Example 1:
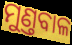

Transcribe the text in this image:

ମୁଣ୍ତବାଳ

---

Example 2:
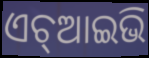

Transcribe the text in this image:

ଏଚ୍ଆଇଭି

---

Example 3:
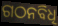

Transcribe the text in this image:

ଗଠନବିଧି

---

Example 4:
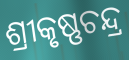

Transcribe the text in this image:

ଶ୍ରୀକୃଷ୍ଣଚନ୍ଦ୍ର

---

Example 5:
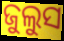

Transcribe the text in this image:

ଜୁଲୁସ